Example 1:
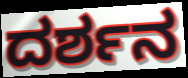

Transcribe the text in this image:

ದರ್ಶನ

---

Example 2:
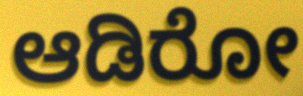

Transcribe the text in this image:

ಆಡಿರೋ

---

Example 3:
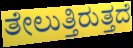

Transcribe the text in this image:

ತೇಲುತ್ತಿರುತ್ತದೆ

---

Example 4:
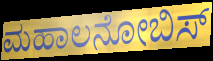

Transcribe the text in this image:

ಮಹಾಲನೋಬಿಸ್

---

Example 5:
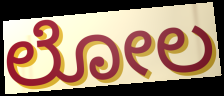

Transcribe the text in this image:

ಲೋಲ